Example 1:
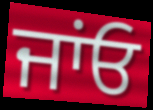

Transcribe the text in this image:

ਜਾਂਓ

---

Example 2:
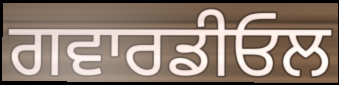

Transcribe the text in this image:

ਗਵਾਰਡੀਓਲ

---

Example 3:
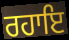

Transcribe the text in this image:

ਰਹਾਇ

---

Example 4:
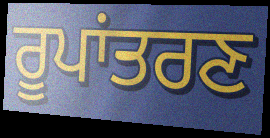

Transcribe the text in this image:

ਰੂਪਾਂਤਰਣ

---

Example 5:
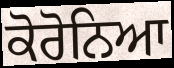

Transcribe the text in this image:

ਕੋਰੋਨਿਆ